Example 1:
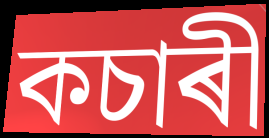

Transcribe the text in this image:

কচাৰী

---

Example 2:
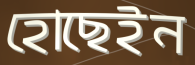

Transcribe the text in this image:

হোছেইন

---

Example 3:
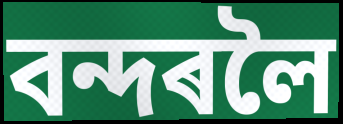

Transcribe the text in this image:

বন্দৰলৈ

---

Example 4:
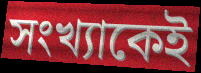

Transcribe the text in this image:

সংখ্যাকেই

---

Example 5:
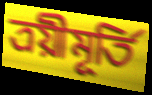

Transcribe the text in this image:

ত্ৰয়ীমূৰ্তি